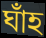
ঘাঁহ